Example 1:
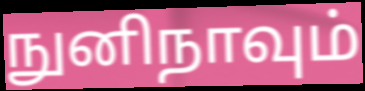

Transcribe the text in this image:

நுனிநாவும்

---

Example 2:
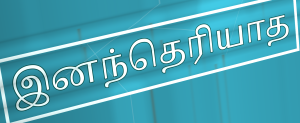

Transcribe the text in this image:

இனந்தெரியாத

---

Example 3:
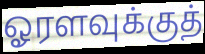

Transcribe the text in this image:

ஓரளவுக்குத்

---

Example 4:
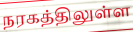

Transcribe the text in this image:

நரகத்திலுள்ள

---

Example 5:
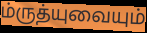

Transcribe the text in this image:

ம்ருத்யுவையும்